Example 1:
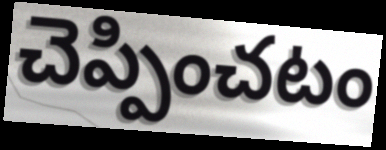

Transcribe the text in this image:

చెప్పించటం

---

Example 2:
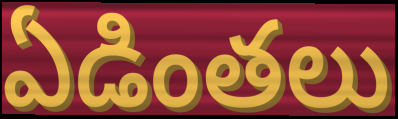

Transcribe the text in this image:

ఏడింతలు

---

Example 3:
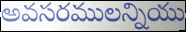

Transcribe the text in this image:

అవసరములన్నియు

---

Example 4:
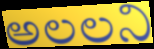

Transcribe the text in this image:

అలలని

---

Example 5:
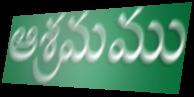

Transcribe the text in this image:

ఆశ్రమము